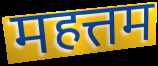
महत्तम